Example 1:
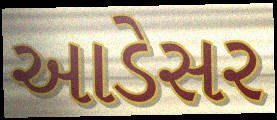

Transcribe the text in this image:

આડેસર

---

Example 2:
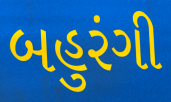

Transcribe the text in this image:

બહુરંગી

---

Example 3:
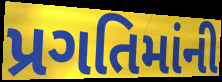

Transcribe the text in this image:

પ્રગતિમાંની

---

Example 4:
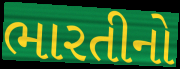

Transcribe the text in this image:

ભારતીનો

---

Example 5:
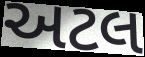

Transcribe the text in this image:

અટલ